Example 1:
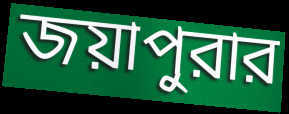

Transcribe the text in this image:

জয়াপুরার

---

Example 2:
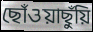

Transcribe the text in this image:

ছোঁওয়াছুঁয়ি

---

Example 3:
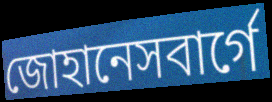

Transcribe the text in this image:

জোহানেসবার্গে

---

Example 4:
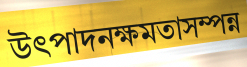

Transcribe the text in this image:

উৎপাদনক্ষমতাসম্পন্ন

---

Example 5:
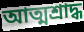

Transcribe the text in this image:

আত্মশ্রাদ্ধ